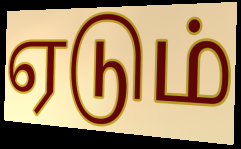
ஏடும்